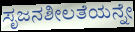
ಸೃಜನಶೀಲತೆಯನ್ನೇ